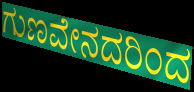
ಗುಣವೇನದರಿಂದ